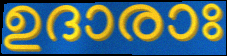
ഉദാരാഃ